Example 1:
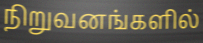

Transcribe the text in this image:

நிறுவனங்களில்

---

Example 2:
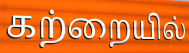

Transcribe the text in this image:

கற்றையில்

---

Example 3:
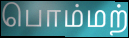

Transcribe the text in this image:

பொம்மற்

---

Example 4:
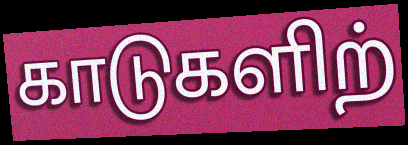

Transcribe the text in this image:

காடுகளிற்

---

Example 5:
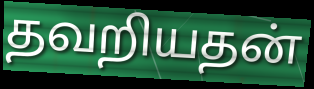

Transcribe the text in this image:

தவறியதன்